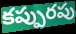
కప్పురపు